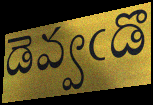
డెవ్వఁడొ